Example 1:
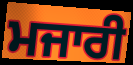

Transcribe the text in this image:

ਮਜਾਰੀ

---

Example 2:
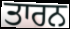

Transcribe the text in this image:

ਤਾਰਨ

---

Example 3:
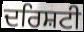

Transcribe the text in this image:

ਦਰਿਸ਼ਟੀ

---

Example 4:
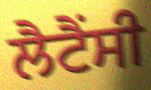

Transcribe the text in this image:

ਲੈਟੈਂਸੀ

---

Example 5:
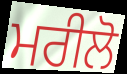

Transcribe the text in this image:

ਮਰੀਲੋ